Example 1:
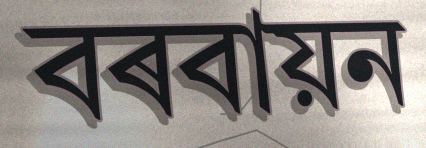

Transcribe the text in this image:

বৰবায়ন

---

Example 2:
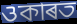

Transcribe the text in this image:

ওকাৰত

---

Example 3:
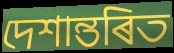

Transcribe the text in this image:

দেশান্তৰিত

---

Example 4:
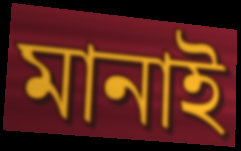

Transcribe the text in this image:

মানাই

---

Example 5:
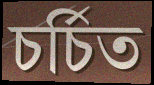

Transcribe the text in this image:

চৰ্চিত